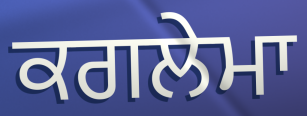
ਕਗਲੇਮਾ